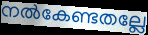
നൽകേണ്ടതല്ലേ